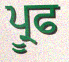
ਪ੍ਰੂਫ